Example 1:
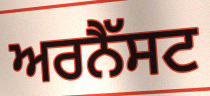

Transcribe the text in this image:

ਅਰਨੈੱਸਟ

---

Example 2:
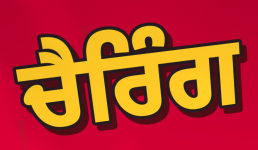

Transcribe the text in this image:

ਚੈਰਿੰਗ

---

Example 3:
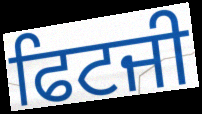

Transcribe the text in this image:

ਫਿਟਜੀ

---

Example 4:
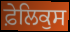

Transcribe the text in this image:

ਫ਼ੇਲਿਕੁਸ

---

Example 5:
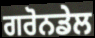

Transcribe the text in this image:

ਗਰੋਨਡੇਲ